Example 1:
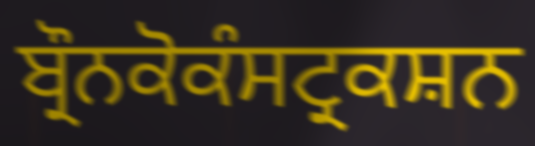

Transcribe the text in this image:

ਬ੍ਰੌਨਕੋਕੰਸਟ੍ਰਕਸ਼ਨ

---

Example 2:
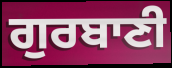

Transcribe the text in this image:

ਗੁਰਬਾਣੀ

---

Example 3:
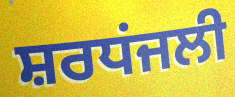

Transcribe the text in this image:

ਸ਼ਰਧਂਜਲੀ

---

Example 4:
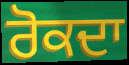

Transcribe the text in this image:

ਰੋਕਦਾ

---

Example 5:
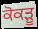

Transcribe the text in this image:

ਕੋਕੜੂ